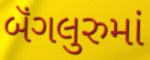
બૅંગલુરુમાં